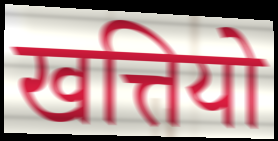
खत्तियो